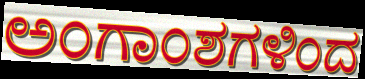
ಅಂಗಾಂಶಗಳಿಂದ